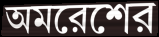
অমরেশের